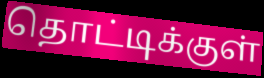
தொட்டிக்குள்